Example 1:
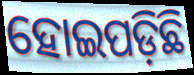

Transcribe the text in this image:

ହୋଇପଡ଼ିଛି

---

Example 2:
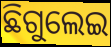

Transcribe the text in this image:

ଛିଗୁଲେଇ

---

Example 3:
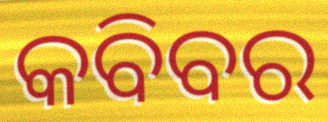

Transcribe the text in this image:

କବିବର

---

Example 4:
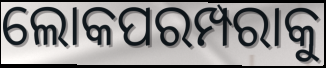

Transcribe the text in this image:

ଲୋକପରମ୍ପରାକୁ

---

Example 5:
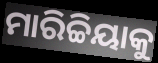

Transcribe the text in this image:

ମାରିଚ୍ଚିୟାକୁ